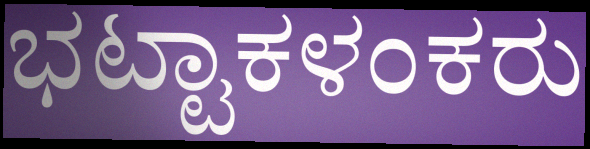
ಭಟ್ಟಾಕಳಂಕರು